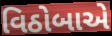
વિઠોબાએ